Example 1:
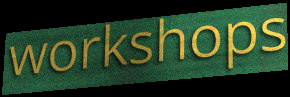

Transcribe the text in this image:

workshops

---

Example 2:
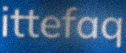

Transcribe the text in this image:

ittefaq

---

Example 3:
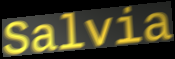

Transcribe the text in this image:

Salvia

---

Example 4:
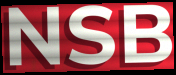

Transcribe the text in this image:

NSB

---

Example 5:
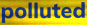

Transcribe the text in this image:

polluted